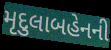
મૃદુલાબહેનની